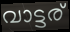
വാട്ടര്